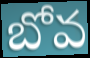
బోవ